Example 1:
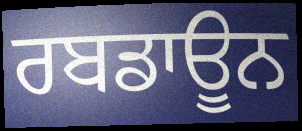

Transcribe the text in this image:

ਰਬਡਾਊਨ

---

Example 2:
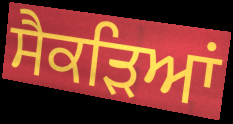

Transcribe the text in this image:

ਸੈਕੜਿਆਂ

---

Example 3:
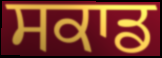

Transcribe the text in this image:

ਸਕਾਡ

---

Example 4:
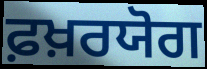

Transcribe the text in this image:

ਫ਼ਖ਼ਰਯੋਗ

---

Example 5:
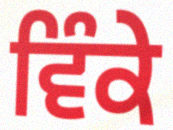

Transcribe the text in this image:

ਵਿੰਕੇ